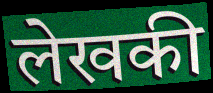
लेखकी